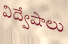
విద్వేషాలు